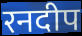
रनदीप